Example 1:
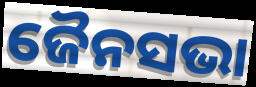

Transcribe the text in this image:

ଜୈନସଭା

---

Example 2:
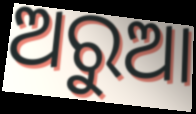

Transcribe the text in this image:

ଅରୁଆ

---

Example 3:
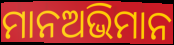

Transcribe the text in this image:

ମାନଅଭିମାନ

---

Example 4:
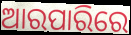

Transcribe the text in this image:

ଆରପାରିରେ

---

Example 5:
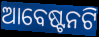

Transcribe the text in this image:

ଆବେଷ୍ଟନଟି